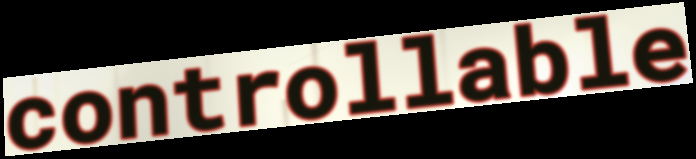
controllable